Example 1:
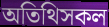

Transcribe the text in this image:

অতিথিসকল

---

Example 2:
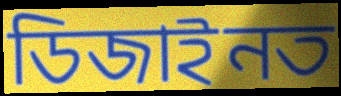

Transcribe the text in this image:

ডিজাইনত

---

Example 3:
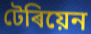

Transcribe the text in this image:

টেৰিয়েন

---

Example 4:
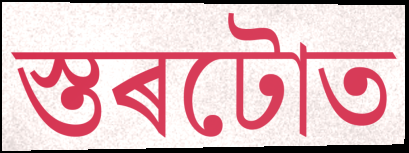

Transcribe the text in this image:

স্তৰটোত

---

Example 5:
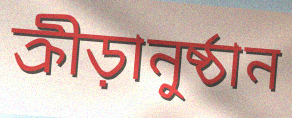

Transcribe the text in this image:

ক্ৰীড়ানুষ্ঠান